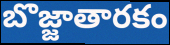
బొజ్జాతారకం